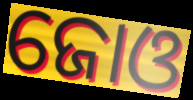
ଜୋଓ